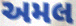
અમલ